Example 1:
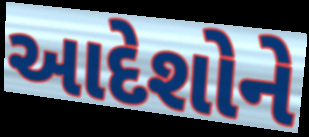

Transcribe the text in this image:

આદેશોને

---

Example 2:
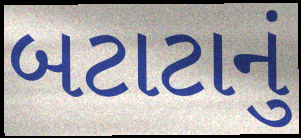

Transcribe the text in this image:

બટાટાનું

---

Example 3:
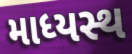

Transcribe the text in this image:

માધ્યસ્થ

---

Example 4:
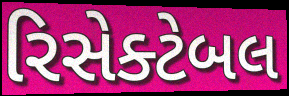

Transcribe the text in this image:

રિસેક્ટેબલ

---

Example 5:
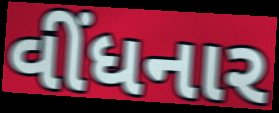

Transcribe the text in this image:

વીંધનાર